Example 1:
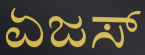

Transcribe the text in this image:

ಏಜಸ್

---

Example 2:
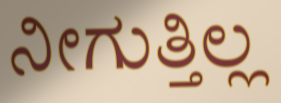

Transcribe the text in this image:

ನೀಗುತ್ತಿಲ್ಲ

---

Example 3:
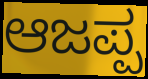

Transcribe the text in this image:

ಆಜಪ್ಪ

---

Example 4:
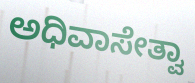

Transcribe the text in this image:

ಅಧಿವಾಸೇತ್ವಾ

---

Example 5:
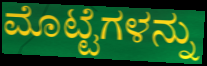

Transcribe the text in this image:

ಮೊಟ್ಟೆಗಳನ್ನು